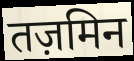
तज़मिन